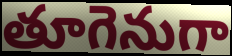
తూగెనుగా